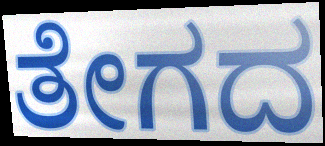
ತೇಗದ